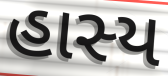
હાસ્ય